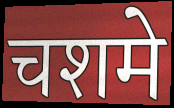
चशमे